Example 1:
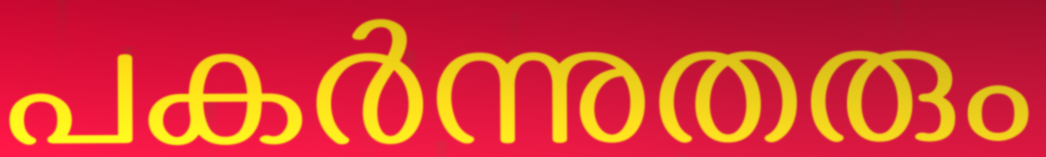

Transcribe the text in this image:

പകർന്നുതരും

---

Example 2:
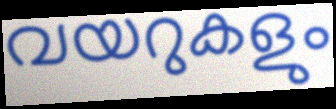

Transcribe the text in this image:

വയറുകളും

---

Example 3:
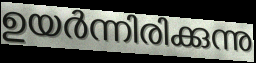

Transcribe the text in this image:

ഉയർന്നിരിക്കുന്നു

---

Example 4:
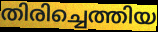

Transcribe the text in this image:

തിരിച്ചെത്തിയ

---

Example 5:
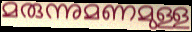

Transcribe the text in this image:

മരുന്നുമണമുള്ള